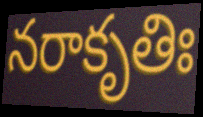
నరాకృతిః